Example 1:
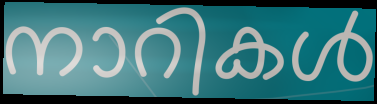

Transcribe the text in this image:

നാറികൾ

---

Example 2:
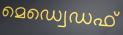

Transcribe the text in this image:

മെഡ്വെഡഫ്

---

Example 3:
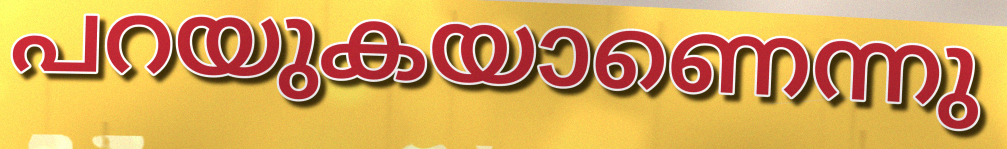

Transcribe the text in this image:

പറയുകയാണെന്നു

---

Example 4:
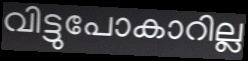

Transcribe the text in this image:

വിട്ടുപോകാറില്ല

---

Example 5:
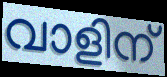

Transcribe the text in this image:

വാളിന്